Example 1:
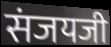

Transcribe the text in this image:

संजयजी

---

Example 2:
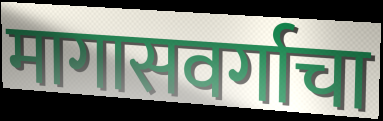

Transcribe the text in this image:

मागासवर्गाचा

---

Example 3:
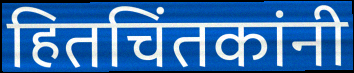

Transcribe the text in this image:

हितचिंतकांनी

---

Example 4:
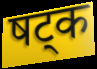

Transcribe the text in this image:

षट्क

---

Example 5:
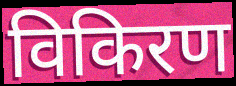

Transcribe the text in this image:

विकिरण